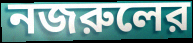
নজরুলের